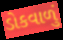
ડોકવાળું